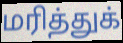
மரித்துக்